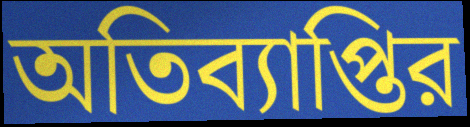
অতিব্যাপ্তির